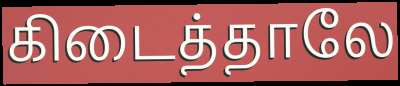
கிடைத்தாலே